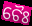
ଚୈଃ